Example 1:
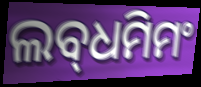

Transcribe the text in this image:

ଲବ୍‌ଧମିମଂ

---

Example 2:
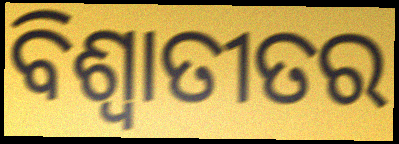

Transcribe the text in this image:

ବିଶ୍ଵାତୀତର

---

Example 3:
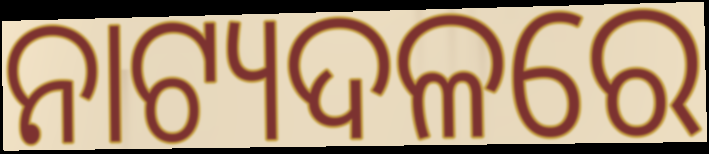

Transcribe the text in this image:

ନାଟ୍ୟଦଳରେ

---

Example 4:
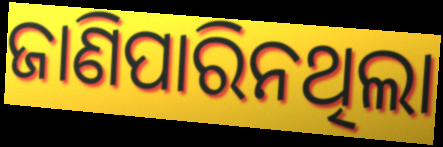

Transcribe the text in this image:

ଜାଣିପାରିନଥିଲା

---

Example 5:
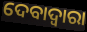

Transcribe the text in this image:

ଦେବାଦ୍ବାରା